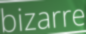
bizarre